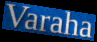
Varaha